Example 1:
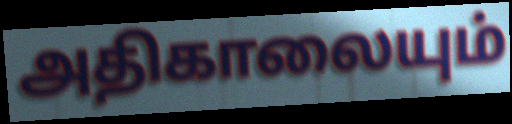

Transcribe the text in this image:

அதிகாலையும்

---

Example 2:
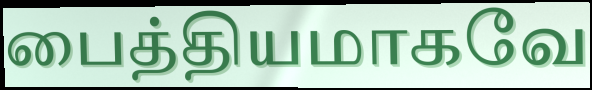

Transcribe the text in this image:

பைத்தியமாகவே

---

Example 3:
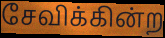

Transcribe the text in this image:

சேவிக்கின்ற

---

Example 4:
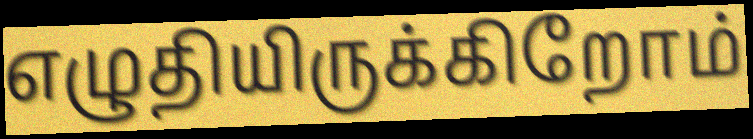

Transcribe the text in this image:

எழுதியிருக்கிறோம்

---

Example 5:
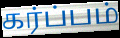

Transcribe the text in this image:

கர்ப்பம்